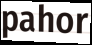
pahor